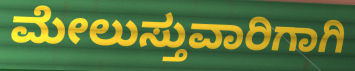
ಮೇಲುಸ್ತುವಾರಿಗಾಗಿ